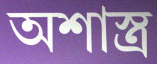
অশাস্ত্র